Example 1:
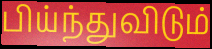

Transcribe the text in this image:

பிய்ந்துவிடும்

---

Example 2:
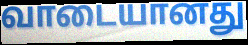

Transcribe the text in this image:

வாடையானது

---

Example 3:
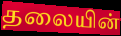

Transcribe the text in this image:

தலையின்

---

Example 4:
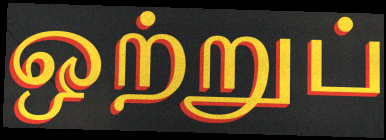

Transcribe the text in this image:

ஒற்றுப்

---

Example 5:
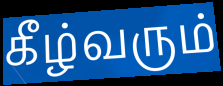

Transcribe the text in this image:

கீழ்வரும்